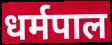
धर्मपाल